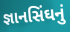
જ્ઞાનસિંઘનું